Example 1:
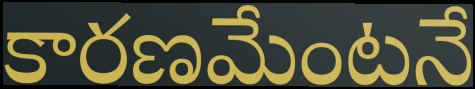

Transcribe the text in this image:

కారణమేంటనే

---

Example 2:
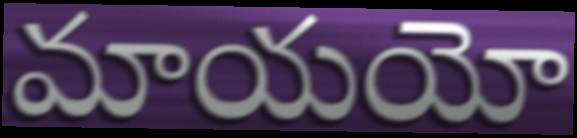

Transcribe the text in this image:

మాయయో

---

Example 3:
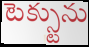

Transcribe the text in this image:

టెక్స్టును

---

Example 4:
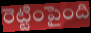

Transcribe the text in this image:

రెట్టింపైంది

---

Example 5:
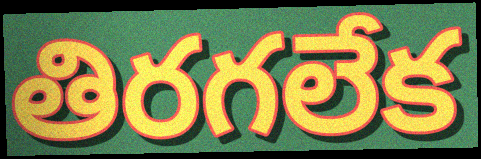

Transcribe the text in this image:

తిరగలేక